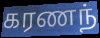
கரணந்